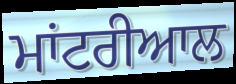
ਮਾਂਟਰੀਆਲ